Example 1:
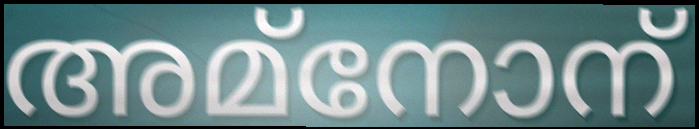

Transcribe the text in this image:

അമ്നോന്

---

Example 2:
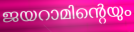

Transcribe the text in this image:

ജയറാമിന്റെയും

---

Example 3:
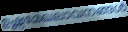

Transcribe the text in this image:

ഉഷ്ണമേഖലാവനങ്ങൾ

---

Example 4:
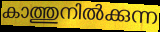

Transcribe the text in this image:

കാത്തുനിൽക്കുന്ന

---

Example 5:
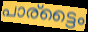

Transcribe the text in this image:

പാര്ട്ടൈം